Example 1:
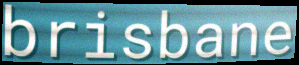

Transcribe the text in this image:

brisbane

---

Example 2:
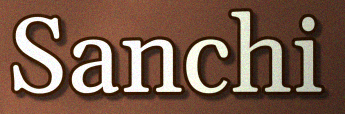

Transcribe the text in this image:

Sanchi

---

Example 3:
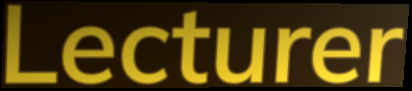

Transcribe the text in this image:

Lecturer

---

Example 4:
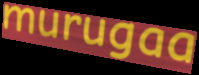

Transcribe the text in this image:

murugaa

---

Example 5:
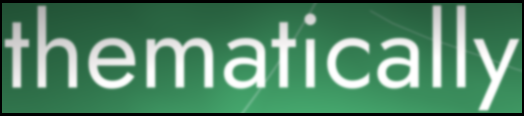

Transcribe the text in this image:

thematically